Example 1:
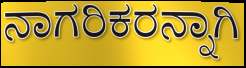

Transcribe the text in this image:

ನಾಗರಿಕರನ್ನಾಗಿ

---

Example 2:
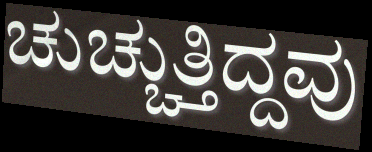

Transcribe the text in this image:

ಚುಚ್ಚುತ್ತಿದ್ದವು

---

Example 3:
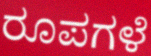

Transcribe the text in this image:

ರೂಪಗಳೆ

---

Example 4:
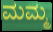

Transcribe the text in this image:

ಮಮ್ಮ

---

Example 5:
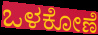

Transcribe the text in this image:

ಒಳಕೋಣೆ